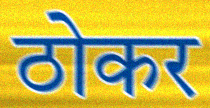
ठोकर